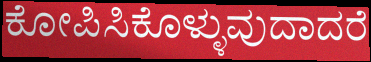
ಕೋಪಿಸಿಕೊಳ್ಳುವುದಾದರೆ